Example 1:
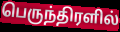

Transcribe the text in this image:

பெருந்திரளில்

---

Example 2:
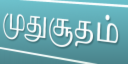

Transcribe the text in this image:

முதுசூதம்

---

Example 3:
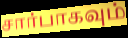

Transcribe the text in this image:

சார்பாகவும்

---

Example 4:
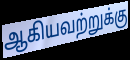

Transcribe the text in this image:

ஆகியவற்றுக்கு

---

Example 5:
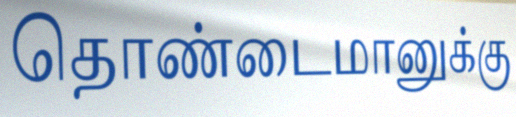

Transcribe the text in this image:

தொண்டைமானுக்கு